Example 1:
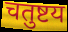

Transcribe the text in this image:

चतुष्टय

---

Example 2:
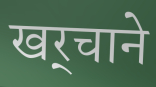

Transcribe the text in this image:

खर्चाने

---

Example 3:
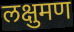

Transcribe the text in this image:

लक्षुमण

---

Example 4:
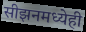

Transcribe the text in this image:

सीझनमध्येही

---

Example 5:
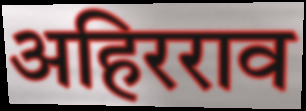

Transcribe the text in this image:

अहिरराव